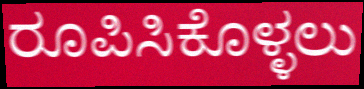
ರೂಪಿಸಿಕೊಳ್ಳಲು